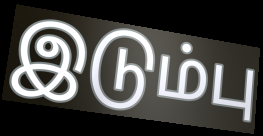
இடும்பு